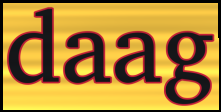
daag